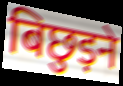
बिछुड़ने